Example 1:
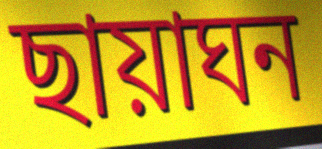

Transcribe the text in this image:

ছায়াঘন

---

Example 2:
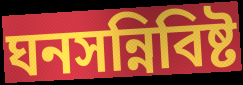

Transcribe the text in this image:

ঘনসন্নিবিষ্ট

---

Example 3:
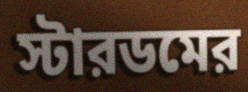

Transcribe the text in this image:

স্টারডমের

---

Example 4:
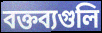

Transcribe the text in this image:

বক্তব্যগুলি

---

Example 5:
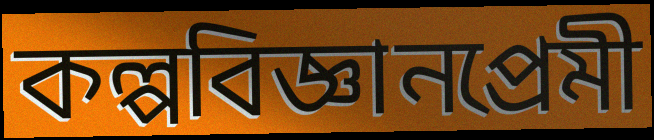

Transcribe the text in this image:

কল্পবিজ্ঞানপ্রেমী